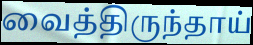
வைத்திருந்தாய்